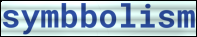
symbbolism